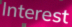
Interest